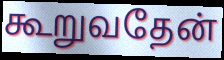
கூறுவதேன்